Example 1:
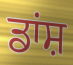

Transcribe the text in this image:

ਡਾਂਸ਼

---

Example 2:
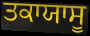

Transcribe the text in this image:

ਤਕਾਯਾਸੂ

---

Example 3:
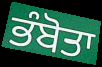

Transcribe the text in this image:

ਭੰਬੋਤਾ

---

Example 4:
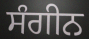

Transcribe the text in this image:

ਸੰਗੀਨ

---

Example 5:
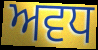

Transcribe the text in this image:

ਅਵਧ